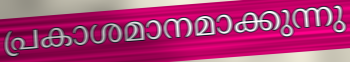
പ്രകാശമാനമാക്കുന്നു